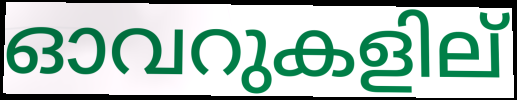
ഓവറുകളില്